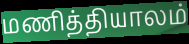
மணித்தியாலம்